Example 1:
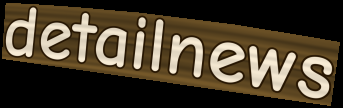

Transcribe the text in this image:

detailnews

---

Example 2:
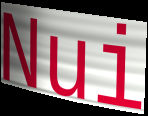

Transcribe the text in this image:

Nui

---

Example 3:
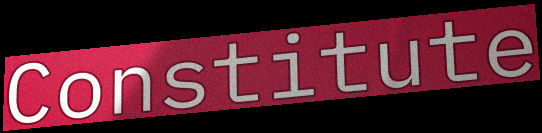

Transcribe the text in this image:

Constitute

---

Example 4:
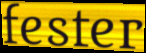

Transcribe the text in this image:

fester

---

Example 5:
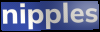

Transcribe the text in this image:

nipples